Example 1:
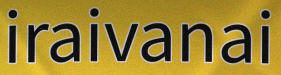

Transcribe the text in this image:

iraivanai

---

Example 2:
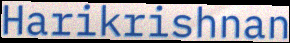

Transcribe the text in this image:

Harikrishnan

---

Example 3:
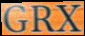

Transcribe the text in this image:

GRX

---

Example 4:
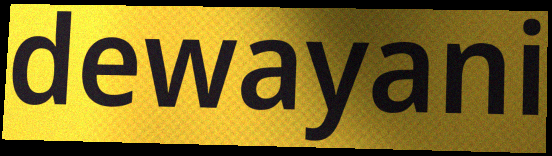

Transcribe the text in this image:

dewayani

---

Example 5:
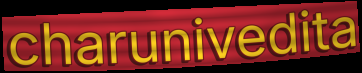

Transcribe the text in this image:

charunivedita